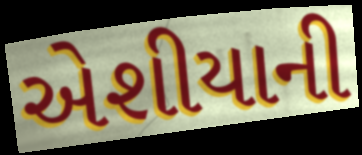
એશીયાની